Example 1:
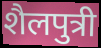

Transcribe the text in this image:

शैलपुत्री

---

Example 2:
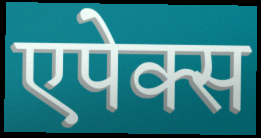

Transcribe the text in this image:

एपेक्स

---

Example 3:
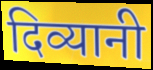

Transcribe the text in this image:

दिव्यानी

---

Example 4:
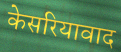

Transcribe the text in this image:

केसरियावाद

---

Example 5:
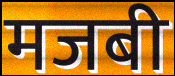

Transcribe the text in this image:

मजबी